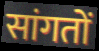
सांगतों